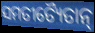
ସମତୀତ୍ୟୈତାନ୍